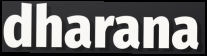
dharana